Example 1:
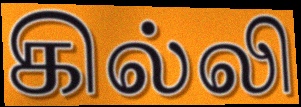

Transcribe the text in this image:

கில்லி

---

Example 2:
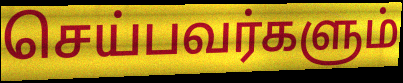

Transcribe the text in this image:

செய்பவர்களும்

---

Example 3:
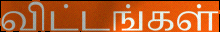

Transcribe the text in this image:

விட்டங்கள்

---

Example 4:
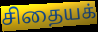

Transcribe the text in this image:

சிதையக்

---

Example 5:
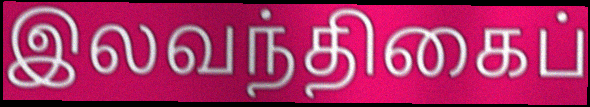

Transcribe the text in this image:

இலவந்திகைப்